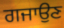
ਗਜਾਉਣ